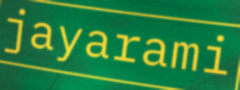
jayarami